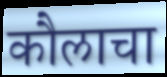
कौलाचा